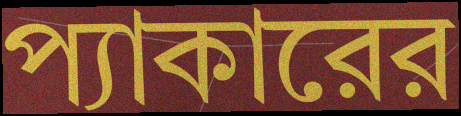
প্যাকারের